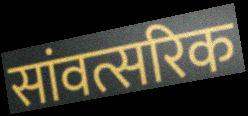
सांवत्सरिक